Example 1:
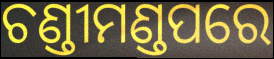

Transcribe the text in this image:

ଚଣ୍ଡୀମଣ୍ଡପରେ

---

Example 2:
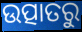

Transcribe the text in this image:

ଉତ୍ପାତରୁ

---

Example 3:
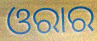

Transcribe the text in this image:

ଓରାର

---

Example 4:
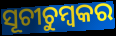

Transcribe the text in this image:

ସୂଚୀଚୁମ୍ବକର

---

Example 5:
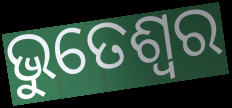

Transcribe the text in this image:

ଭୁତେଶ୍ୱର